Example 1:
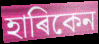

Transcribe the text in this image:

হাৰিকেন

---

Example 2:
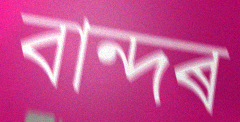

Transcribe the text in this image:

বান্দৰ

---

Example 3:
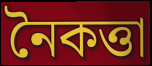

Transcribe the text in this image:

নৈকত্তা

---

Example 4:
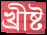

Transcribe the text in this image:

খ্ৰীষ্ট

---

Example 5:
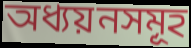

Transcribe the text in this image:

অধ্যয়নসমূহ